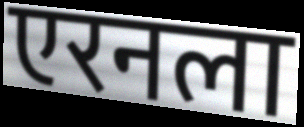
एरनला